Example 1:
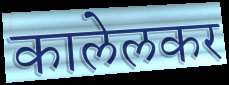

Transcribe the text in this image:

कालेलकर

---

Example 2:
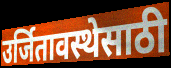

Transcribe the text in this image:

उर्जितावस्थेसाठी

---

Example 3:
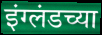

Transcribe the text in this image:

इंग्‍लंडच्या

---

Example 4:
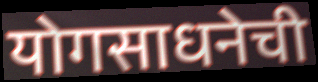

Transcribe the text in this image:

योगसाधनेची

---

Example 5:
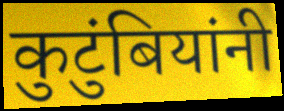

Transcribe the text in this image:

कुटुंबियांनी